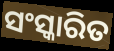
ସଂସ୍କାରିତ